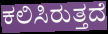
ಕಲಿಸಿರುತ್ತದೆ